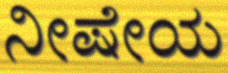
ನೀಷೇಯ